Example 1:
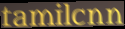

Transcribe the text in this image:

tamilcnn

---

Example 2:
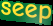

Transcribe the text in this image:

seep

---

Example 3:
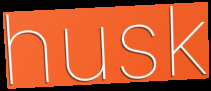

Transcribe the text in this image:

husk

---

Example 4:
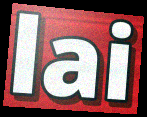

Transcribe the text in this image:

lai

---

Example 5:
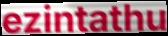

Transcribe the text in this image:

ezintathu